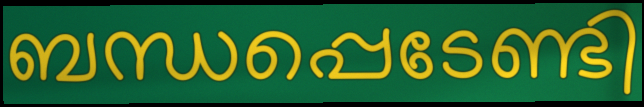
ബന്ധപ്പെടേണ്ടി